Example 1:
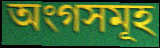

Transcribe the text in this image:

অংগসমূহ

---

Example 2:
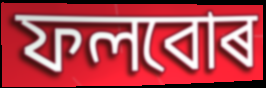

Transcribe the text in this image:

ফলবোৰ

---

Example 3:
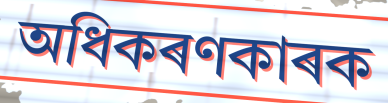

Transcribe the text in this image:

অধিকৰণকাৰক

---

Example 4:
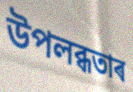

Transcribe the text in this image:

উপলব্ধতাৰ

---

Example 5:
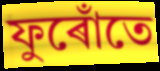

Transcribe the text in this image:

ফুৰোঁতে